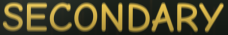
SECONDARY